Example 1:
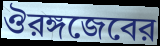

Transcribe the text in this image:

ঔরঙ্গজেবের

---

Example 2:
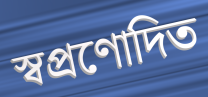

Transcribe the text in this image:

স্বপ্রণোদিত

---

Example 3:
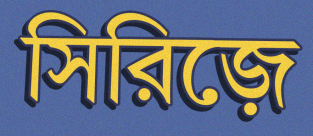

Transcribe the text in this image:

সিরিজ়ে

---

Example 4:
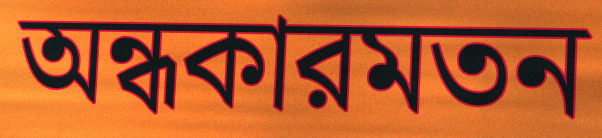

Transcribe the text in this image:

অন্ধকারমতন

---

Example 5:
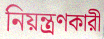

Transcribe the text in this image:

নিয়ন্ত্রণকারী